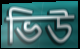
ভিউ